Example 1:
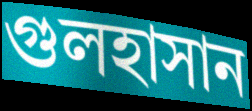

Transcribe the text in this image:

গুলহাসান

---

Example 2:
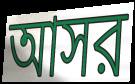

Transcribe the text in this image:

আসর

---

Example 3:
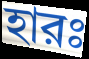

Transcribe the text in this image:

হারঃ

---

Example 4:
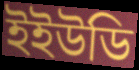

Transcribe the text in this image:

ইইউডি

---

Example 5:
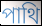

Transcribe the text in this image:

পাথি